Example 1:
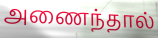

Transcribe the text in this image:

அணைந்தால்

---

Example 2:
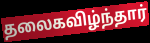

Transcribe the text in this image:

தலைகவிழ்ந்தார்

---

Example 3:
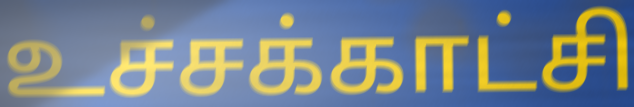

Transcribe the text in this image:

உச்சக்காட்சி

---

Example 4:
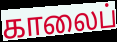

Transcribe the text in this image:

காலைப்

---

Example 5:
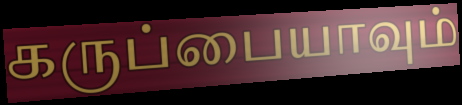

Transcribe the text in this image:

கருப்பையாவும்